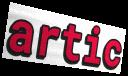
artic